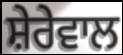
ਸ਼ੇਰੇਵਾਲ